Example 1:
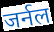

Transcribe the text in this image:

जर्नल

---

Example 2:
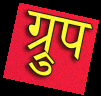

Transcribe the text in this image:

ग्र्रुप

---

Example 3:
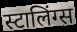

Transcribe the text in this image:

स्टालिंग्स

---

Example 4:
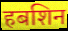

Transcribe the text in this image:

हबशिन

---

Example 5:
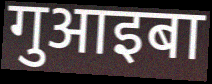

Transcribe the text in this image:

गुआइबा